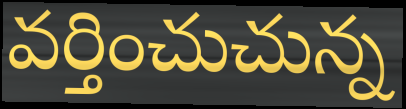
వర్తించుచున్న